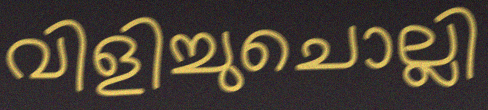
വിളിച്ചുചൊല്ലി